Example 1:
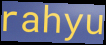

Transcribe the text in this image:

rahyu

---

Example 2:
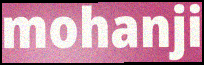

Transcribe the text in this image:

mohanji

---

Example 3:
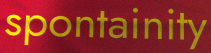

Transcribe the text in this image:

spontainity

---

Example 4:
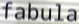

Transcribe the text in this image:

fabula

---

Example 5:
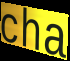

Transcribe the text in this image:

cha